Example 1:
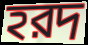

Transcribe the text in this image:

হরদ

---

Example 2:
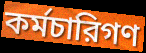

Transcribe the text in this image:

কর্মচারিগণ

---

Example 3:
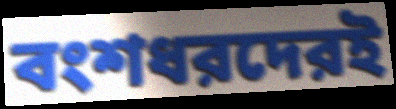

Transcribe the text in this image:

বংশধরদেরই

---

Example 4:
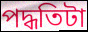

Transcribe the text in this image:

পদ্ধতিটা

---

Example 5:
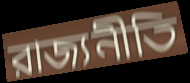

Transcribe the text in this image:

রাজ্যনীতি